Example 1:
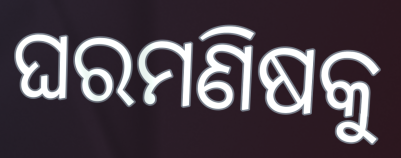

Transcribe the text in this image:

ଘରମଣିଷକୁ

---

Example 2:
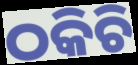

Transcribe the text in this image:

ଠକିଚି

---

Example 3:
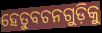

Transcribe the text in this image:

ହେତୁବଚନଗୁଡ଼ିକୁ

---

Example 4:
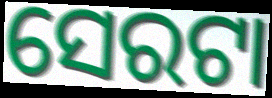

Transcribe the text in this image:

ସେରଟା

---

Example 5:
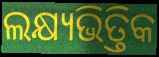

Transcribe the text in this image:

ଲକ୍ଷ୍ୟଭିତ୍ତିକ